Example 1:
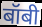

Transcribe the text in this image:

बॉबी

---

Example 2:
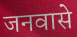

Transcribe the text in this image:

जनवासे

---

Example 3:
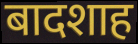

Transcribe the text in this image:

बादशाह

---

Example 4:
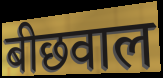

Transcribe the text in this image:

बीछवाल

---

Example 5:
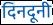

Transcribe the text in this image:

दिनदूनी